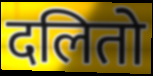
दलितो